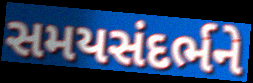
સમયસંદર્ભને